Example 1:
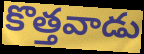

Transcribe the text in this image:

కొత్తవాడు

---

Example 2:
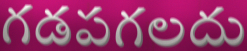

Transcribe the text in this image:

గడపగలదు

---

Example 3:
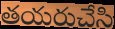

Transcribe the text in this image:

తయరుచేసి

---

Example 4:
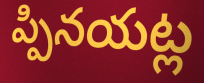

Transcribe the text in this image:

ప్పినయట్ల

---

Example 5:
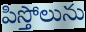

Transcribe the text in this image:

పిస్తోలును